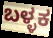
ಬಳ್ಳಕ